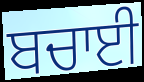
ਬਚਾਈ